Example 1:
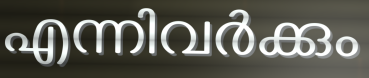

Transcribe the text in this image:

എന്നിവർക്കും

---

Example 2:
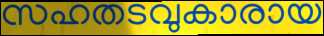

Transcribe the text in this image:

സഹതടവുകാരായ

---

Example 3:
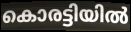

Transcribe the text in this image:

കൊരട്ടിയിൽ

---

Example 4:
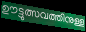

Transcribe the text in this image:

ഊട്ടുത്സവത്തിനുള്ള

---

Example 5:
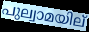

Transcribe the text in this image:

പുല്വാമയില്